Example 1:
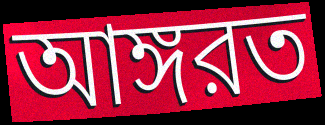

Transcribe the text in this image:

আঙ্গরত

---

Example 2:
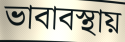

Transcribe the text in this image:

ভাবাবস্থায়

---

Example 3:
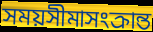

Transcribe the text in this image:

সময়সীমাসংক্রান্ত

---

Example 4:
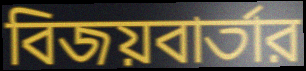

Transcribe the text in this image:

বিজয়বার্তার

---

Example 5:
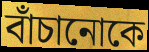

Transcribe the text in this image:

বাঁচানোকে